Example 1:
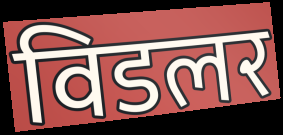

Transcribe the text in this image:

विडलर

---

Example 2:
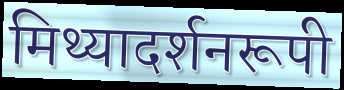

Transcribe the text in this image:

मिथ्यादर्शनरूपी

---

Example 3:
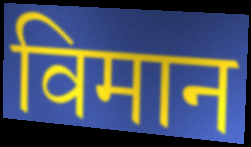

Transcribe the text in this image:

विमान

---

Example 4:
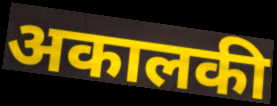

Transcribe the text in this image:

अकालकी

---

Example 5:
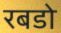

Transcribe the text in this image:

रबडो